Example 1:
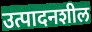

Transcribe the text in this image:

उत्पादनशील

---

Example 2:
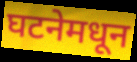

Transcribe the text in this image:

घटनेमधून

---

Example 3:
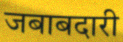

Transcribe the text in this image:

जबाबदारी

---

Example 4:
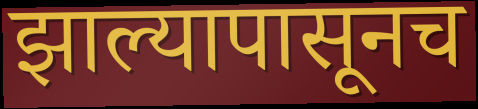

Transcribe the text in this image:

झाल्यापासूनच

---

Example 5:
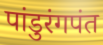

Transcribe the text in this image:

पांडुरंगपंत